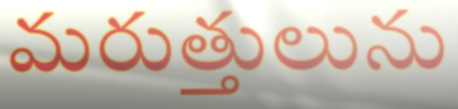
మరుత్తులును